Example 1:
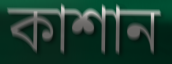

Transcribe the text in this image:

কাশান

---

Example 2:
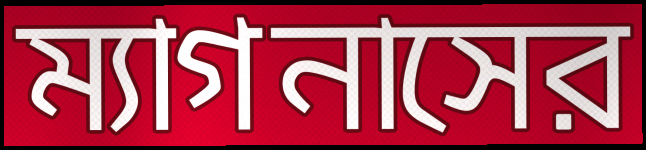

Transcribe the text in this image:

ম্যাগনাসের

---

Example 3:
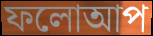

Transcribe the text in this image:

ফলোআপ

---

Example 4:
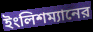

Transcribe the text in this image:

ইংলিশম্যানের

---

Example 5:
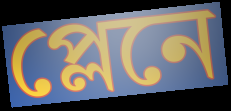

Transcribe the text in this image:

প্লেনে